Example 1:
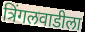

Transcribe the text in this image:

त्रिंगलवाडीला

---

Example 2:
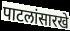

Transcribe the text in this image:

पाटलांसारखे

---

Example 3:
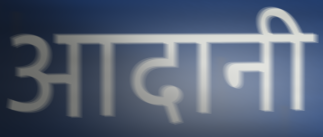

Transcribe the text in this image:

आदानी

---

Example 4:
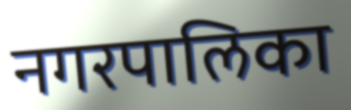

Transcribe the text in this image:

नगरपालिका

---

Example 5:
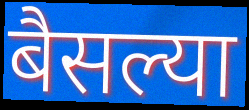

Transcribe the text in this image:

बैसल्या